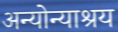
अन्योन्याश्रय